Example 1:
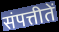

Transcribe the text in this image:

संपत्तीतें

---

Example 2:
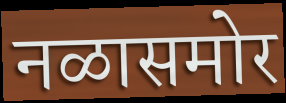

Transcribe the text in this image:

नळासमोर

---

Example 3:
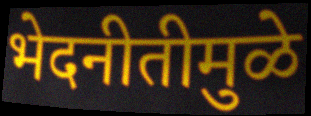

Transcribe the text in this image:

भेदनीतीमुळे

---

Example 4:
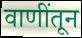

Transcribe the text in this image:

वाणींतून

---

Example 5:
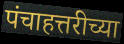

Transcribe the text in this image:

पंचाहत्तरीच्या